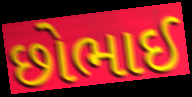
છોભાઈ